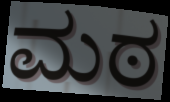
ಮಠ